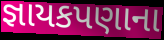
જ્ઞાયકપણાના